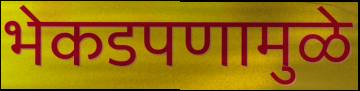
भेकडपणामुळे